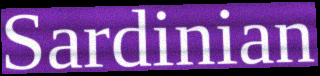
Sardinian